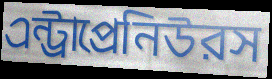
এন্ট্রাপ্রেনিউরস